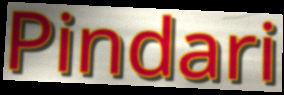
Pindari